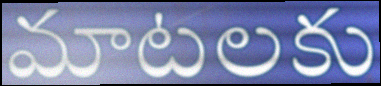
మాటలకు